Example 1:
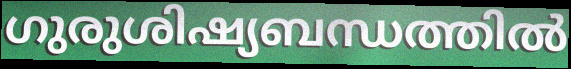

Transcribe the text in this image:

ഗുരുശിഷ്യബന്ധത്തിൽ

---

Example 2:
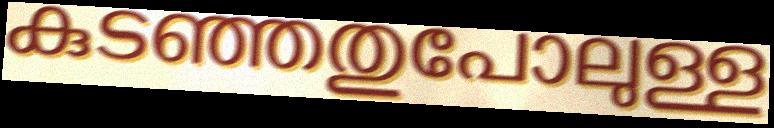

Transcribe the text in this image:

കുടഞ്ഞതുപോലുള്ള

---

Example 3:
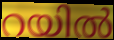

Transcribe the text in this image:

റയിൽ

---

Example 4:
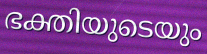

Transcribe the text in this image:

ഭക്തിയുടെയും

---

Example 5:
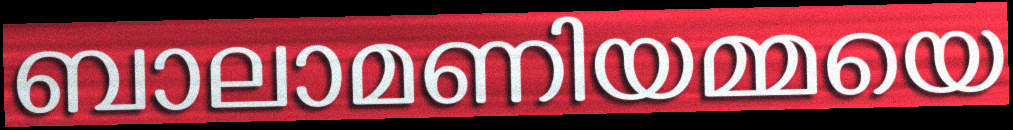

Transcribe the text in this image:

ബാലാമണിയമ്മയെ